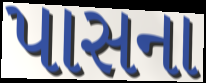
પાસના